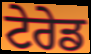
ਟੇਰੇਡ